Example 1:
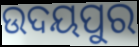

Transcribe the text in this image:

ଉଦୟପୁର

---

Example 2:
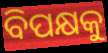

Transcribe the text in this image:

ବିପକ୍ଷକୁ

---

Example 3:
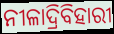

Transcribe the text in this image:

ନୀଳାଦ୍ରିବିହାରୀ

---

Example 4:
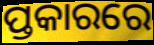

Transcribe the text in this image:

ପ୍ତକାରରେ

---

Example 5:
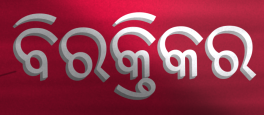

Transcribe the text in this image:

ବିରକ୍ତିକର